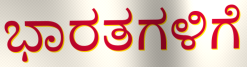
ಭಾರತಗಳಿಗೆ